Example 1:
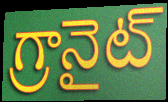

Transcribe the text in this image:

గ్రానైట్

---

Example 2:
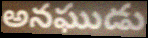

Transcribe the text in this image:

అనఘుడు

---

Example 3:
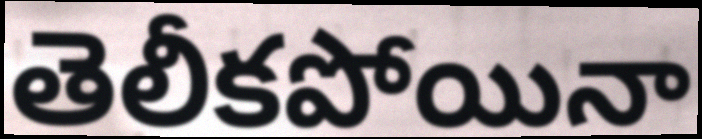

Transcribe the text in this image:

తెలీకపోయినా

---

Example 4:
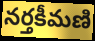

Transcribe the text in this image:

నర్తకీమణి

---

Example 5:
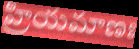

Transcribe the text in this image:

హ్రియమాణః